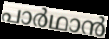
പാർഥാൻ